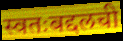
स्वतःबद्दलची